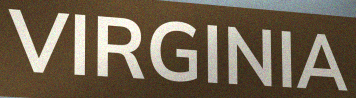
VIRGINIA